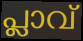
പ്ലാവ്